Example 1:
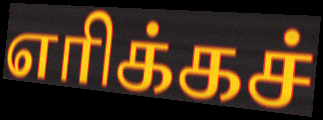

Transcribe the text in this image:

எரிக்கச்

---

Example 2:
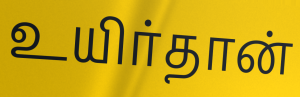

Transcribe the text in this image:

உயிர்தான்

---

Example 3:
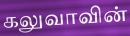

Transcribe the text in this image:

கலுவாவின்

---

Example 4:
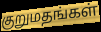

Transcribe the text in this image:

குறுமதங்கள்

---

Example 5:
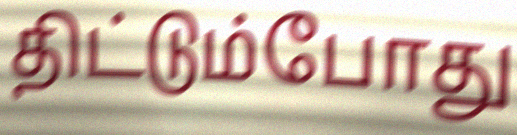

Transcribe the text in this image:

திட்டும்போது